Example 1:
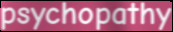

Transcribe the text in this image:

psychopathy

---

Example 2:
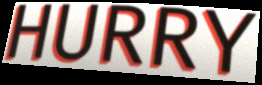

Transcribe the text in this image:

HURRY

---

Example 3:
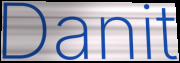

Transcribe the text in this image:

Danit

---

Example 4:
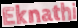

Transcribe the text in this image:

Eknathi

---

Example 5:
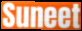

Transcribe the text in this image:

Suneet